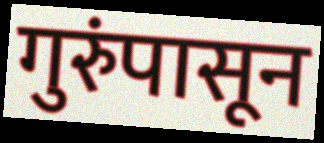
गुरुंपासून